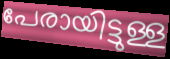
പേരായിട്ടുള്ള